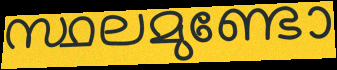
സ്ഥലമുണ്ടോ